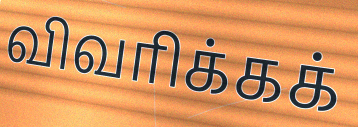
விவரிக்கக்